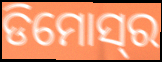
ଡିମୋସ୍‌ର